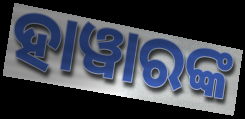
ହାୱାରଙ୍କ